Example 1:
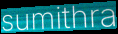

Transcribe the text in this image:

sumithra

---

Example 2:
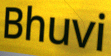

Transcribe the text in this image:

Bhuvi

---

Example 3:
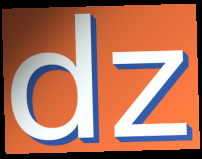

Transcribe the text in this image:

dz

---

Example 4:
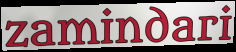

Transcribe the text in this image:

zamindari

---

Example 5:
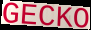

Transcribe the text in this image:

GECKO